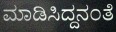
ಮಾಡಿಸಿದ್ದನಂತೆ